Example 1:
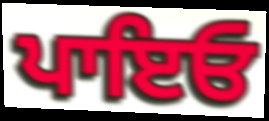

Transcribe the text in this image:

ਪਾਇਓ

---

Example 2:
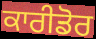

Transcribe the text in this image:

ਕਾਰੀਡੋਰ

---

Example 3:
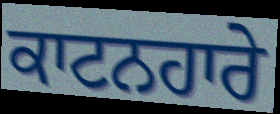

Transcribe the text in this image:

ਕਾਟਨਹਾਰੇ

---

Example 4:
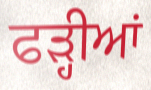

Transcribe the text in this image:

ਫੜ੍ਹੀਆਂ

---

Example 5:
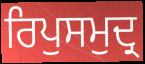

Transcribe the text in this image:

ਰਿਪੁਸਮੁਦ੍ਰ